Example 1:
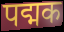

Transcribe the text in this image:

पद्मक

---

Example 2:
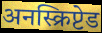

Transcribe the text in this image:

अनस्क्रिप्टेड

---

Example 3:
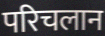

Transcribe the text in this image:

परिचलान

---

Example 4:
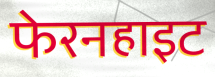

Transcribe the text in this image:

फेरनहाइट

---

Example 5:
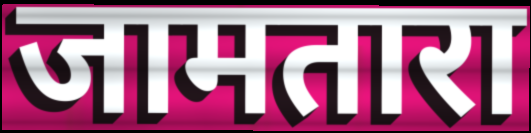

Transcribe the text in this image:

जामतारा